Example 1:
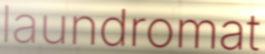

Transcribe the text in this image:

laundromat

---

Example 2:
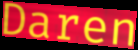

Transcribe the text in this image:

Daren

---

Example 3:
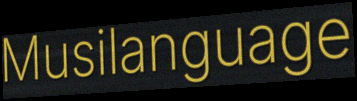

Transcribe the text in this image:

Musilanguage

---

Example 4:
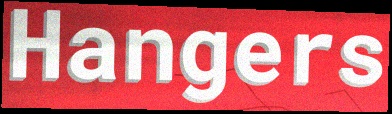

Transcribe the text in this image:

Hangers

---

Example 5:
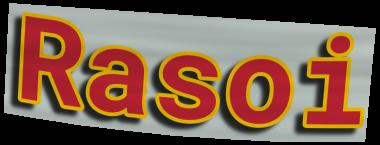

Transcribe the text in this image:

Rasoi